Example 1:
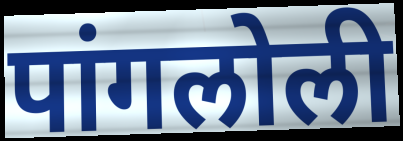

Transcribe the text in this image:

पांगलोली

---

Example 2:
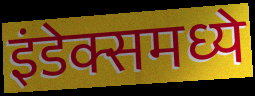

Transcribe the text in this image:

इंडेक्समध्ये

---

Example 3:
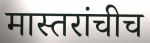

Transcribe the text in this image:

मास्तरांचीच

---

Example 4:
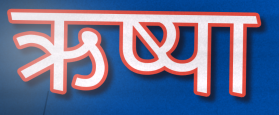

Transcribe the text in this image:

ऋष्या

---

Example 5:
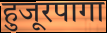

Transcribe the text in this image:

हुजूरपागा